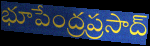
భూపేంద్రప్రసాద్